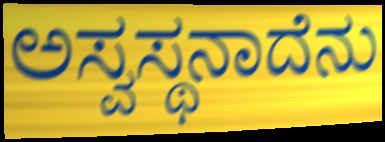
ಅಸ್ವಸ್ಥನಾದೆನು